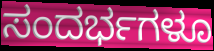
ಸಂದರ್ಭಗಳೂ